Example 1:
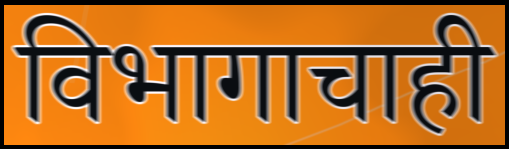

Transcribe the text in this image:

विभागाचाही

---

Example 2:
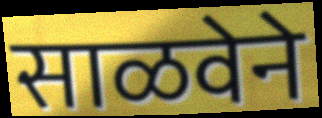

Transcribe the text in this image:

साळवेने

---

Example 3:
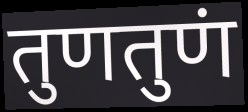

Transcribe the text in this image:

तुणतुणं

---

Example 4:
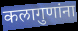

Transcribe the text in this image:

कलागुणांना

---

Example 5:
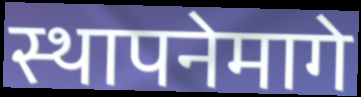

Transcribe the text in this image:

स्थापनेमागे